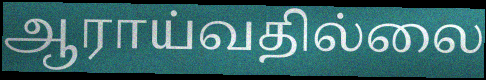
ஆராய்வதில்லை